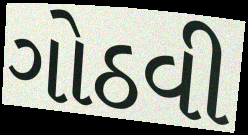
ગોઠવી